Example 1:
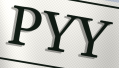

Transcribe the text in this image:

PYY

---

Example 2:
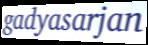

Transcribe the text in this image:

gadyasarjan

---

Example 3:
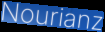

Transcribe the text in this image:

Nourianz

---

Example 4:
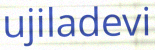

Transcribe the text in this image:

ujiladevi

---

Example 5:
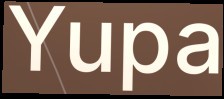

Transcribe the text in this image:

Yupa